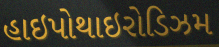
હાઇપોથાઇરોડિઝમ